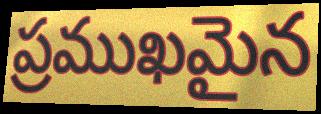
ప్రముఖమైన